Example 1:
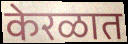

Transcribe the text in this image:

केरळात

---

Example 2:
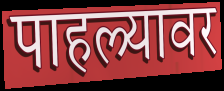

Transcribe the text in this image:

पाहल्यावर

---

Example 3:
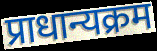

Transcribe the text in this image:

प्राधान्यक्रम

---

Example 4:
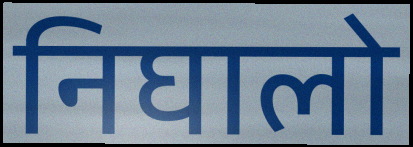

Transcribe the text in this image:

निघालो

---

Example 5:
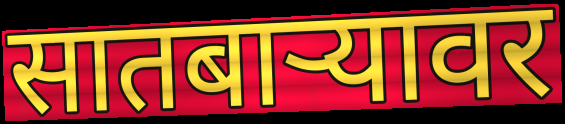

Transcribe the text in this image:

सातबाऱ्यावर